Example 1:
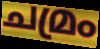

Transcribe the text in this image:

ചമ്രം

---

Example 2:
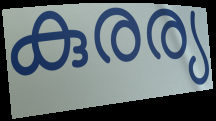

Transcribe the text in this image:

കുരര്യ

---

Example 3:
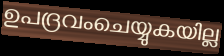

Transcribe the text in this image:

ഉപദ്രവംചെയ്യുകയില്ല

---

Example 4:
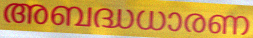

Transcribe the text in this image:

അബദ്ധധാരണ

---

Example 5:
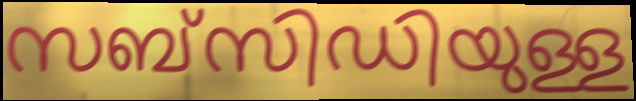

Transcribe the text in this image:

സബ്സിഡിയുള്ള